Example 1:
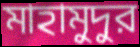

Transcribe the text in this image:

মাহামুদুর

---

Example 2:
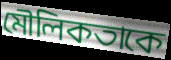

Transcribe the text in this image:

মৌলিকতাকে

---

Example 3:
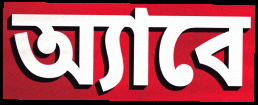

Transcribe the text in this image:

অ্যাবে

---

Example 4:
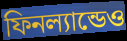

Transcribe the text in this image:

ফিনল্যান্ডেও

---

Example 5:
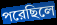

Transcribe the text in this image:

পরেছিলে